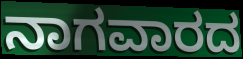
ನಾಗವಾರದ